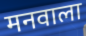
मनवाला